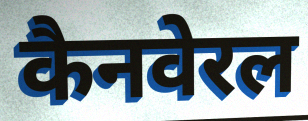
कैनवेरल